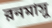
রনমাসু